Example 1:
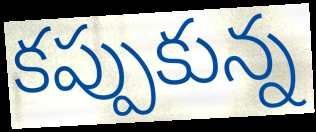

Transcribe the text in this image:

కప్పుకున్న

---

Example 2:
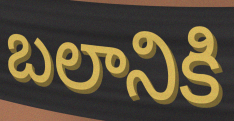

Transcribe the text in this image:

బలానికి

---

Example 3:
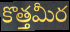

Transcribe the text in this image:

కొత్తమీర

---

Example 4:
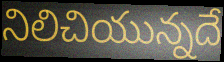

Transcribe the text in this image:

నిలిచియున్నదే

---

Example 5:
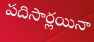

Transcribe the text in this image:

పదిసార్లయినా